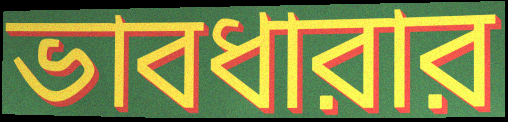
ভাবধারার